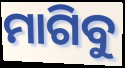
ମାଗିବୁ